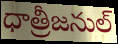
ధాత్రీజనుల్